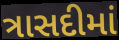
ત્રાસદીમાં